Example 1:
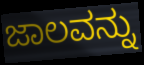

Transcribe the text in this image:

ಜಾಲವನ್ನು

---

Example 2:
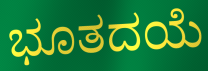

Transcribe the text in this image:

ಭೂತದಯೆ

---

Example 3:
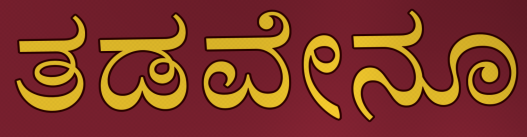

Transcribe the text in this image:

ತಡವೇನೂ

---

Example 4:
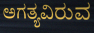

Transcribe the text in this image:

ಅಗತ್ಯವಿರುವ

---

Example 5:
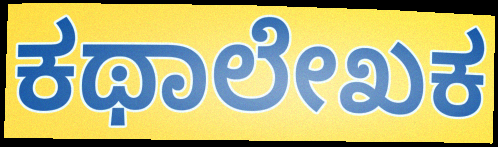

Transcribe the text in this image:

ಕಥಾಲೇಖಕ